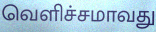
வெளிச்சமாவது